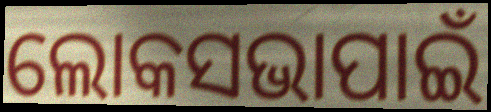
ଲୋକସଭାପାଇଁ